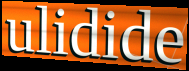
ulidide